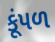
કૂંપળ